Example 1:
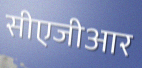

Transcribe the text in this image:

सीएजीआर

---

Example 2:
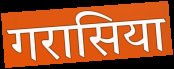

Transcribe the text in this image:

गरासिया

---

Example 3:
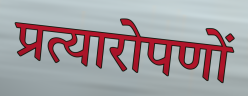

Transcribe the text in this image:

प्रत्यारोपणों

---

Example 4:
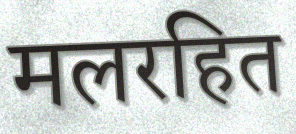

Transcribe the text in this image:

मलरहित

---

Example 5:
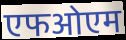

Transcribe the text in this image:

एफओएम